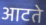
आटते